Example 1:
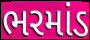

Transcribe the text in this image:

ભરમાંડ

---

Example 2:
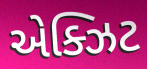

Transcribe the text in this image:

એક્ઝિટ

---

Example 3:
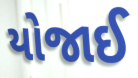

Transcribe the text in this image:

યોજાઈ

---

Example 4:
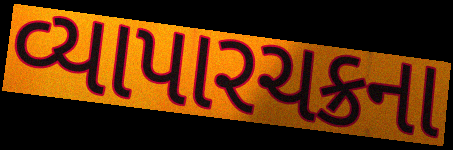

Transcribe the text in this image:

વ્યાપારચક્રના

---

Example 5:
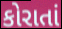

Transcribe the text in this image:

કોરાતાં